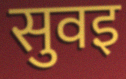
सुवइ